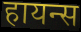
हायन्स